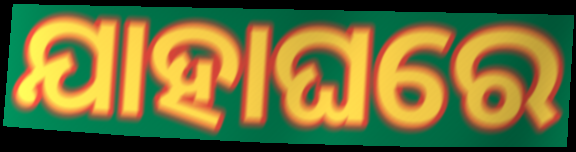
ଯାହାଘରେ